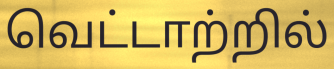
வெட்டாற்றில்